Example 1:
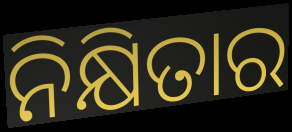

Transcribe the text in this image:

ନିକ୍ଷିତାର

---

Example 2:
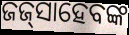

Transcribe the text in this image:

ଜଜ୍‌ସାହେବଙ୍କ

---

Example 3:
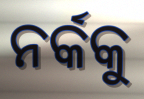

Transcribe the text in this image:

ନର୍କକୁ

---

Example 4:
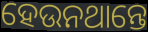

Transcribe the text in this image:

ହେଉନଥାନ୍ତେ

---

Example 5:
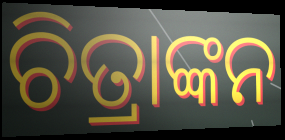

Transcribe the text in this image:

ଚିତ୍ରାଙ୍କନ